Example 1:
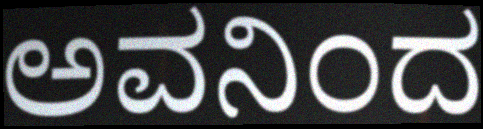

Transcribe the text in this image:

ಅವನಿಂದ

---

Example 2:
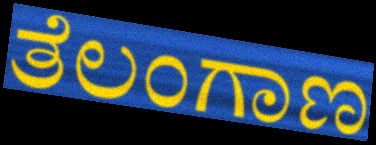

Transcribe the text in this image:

ತೆಲಂಗಾಣ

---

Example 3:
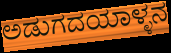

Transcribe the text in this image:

ಅಡುಗದಯಾಳ್ಳನ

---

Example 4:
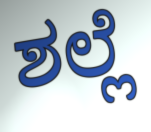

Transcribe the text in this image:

ಶಲ್ಲೆ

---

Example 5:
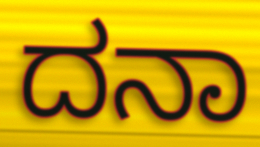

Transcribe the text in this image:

ದನಾ